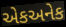
એકઅનેક